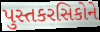
પુસ્તકરસિકોને